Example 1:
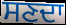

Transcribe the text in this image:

ਸਣਦਾ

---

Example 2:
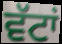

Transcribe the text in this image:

ਵੱਟਾਂ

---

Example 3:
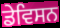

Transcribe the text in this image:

ਡੇਵਿਸਨ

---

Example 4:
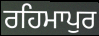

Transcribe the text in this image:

ਰਹਿਮਾਪੁਰ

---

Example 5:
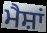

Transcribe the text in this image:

ਮੈਸ਼ਾਂ